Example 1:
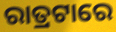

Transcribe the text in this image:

ରାତ୍ରଟାରେ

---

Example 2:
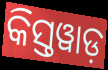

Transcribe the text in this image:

କିସ୍ତୱାଡ଼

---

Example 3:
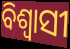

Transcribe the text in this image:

ବିଶ୍ୱାସୀ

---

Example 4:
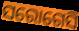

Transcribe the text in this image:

ସରୋଗେସି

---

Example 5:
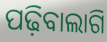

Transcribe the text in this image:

ପଢ଼ିବାଲାଗି